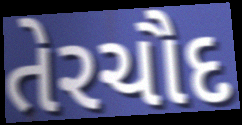
તેરચૌદ